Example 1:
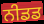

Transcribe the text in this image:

ਨੀਡਡ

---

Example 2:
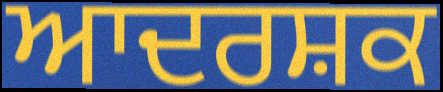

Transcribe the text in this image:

ਆਦਰਸ਼ਕ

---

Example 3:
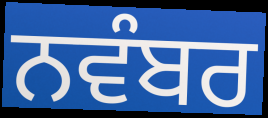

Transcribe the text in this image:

ਨਵੰਬਰ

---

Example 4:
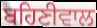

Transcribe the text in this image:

ਬਹਿਣੀਵਾਲ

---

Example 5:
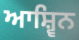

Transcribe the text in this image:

ਆਸ਼੍ਵਿਨ